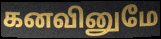
கனவினுமே